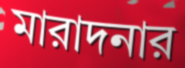
মারাদনার